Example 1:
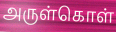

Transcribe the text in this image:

அருள்கொள்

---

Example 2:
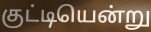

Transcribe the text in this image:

குட்டியென்று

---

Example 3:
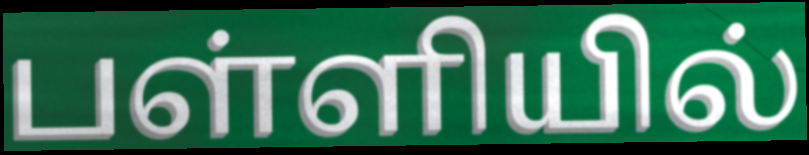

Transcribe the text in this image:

பள்ளியில்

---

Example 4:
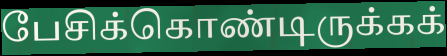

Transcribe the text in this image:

பேசிக்கொண்டிருக்கக்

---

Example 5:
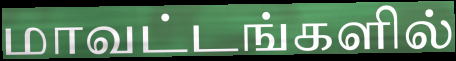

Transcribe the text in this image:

மாவட்டங்களில்